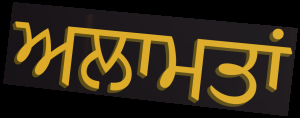
ਅਲਾਮਤਾਂ